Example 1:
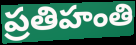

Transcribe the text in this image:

ప్రతిహంతి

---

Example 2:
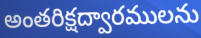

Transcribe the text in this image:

అంతరిక్షద్వారములను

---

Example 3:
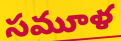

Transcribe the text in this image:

సమూళ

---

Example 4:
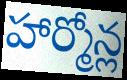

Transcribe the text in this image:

హార్మోన్ల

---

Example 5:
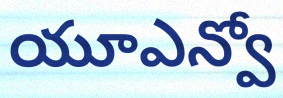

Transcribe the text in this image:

యూఎన్వో